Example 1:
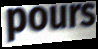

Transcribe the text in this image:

pours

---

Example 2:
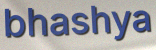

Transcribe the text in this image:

bhashya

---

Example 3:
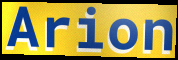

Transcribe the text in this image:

Arion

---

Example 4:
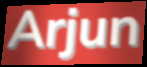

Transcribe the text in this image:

Arjun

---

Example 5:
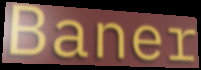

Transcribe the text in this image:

Baner